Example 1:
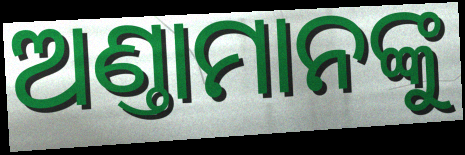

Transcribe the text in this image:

ଅଣ୍ତାମାନଙ୍କୁ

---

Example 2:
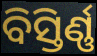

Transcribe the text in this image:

ବିସ୍ତିର୍ଣ୍ଣ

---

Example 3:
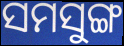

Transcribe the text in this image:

ସମସୁଙ୍ଗ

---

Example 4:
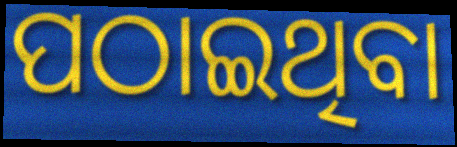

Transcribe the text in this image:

ପଠାଇଥିବା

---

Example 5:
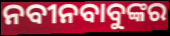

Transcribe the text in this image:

ନବୀନବାବୁଙ୍କର